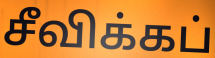
சீவிக்கப்